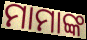
ମାମାଙ୍କ